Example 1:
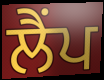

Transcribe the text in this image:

ਲੈਂਪ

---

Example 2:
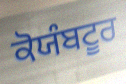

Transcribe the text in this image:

ਕੋਯੰਬਟੂਰ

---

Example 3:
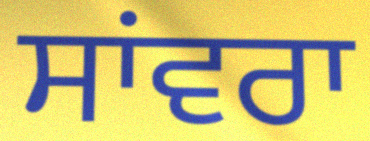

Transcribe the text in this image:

ਸਾਂਵਰਾ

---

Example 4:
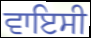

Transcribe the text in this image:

ਵਾਇਸੀ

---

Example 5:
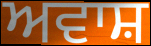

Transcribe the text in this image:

ਅਵਾਸ਼